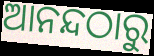
ଆନନ୍ଦଠାରୁ